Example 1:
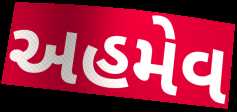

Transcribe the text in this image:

અહમેવ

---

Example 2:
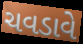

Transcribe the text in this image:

ચવડાવે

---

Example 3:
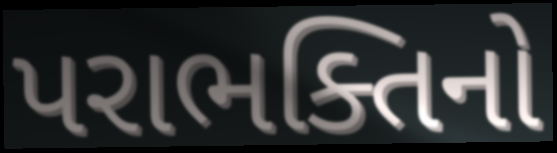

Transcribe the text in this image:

પરાભક્તિનો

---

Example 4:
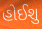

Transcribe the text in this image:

હોઈશુ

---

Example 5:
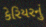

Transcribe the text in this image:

કેરિયરનું